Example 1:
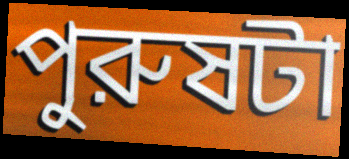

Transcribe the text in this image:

পুরুষটা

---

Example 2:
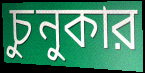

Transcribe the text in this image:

চুনুকার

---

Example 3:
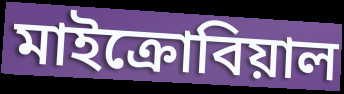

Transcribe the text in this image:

মাইক্রোবিয়াল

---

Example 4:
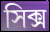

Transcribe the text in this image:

সিক্স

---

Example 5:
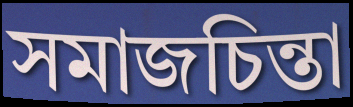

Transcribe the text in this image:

সমাজচিন্তা